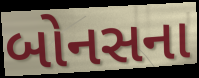
બોનસના